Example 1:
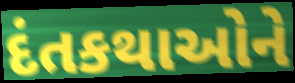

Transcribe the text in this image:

દંતકથાઓને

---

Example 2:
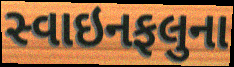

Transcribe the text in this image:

સ્વાઇનફલુના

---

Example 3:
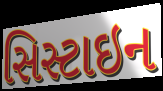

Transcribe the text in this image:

સિસ્ટાઇન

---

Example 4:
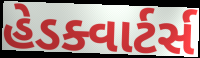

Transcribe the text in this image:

હેડક્વાર્ટર્સ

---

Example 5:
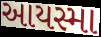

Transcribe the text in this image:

આયસ્મા